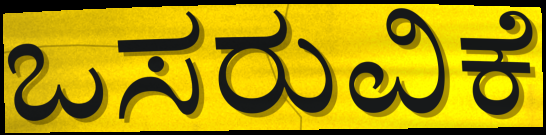
ಒಸರುವಿಕೆ